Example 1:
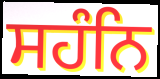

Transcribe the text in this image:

ਸਹੰਨਿ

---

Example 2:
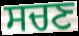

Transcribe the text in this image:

ਸਚਣ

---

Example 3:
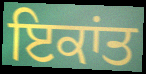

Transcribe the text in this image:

ਇਕਾਂਤ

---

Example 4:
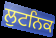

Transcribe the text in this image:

ਲੁਟਨਿਕ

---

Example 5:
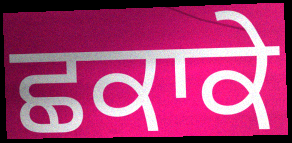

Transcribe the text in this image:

ਛਕਾਕੇ